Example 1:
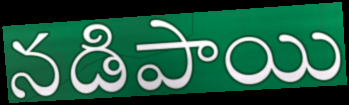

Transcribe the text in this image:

నడిపాయి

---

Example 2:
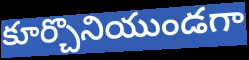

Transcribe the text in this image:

కూర్చొనియుండగా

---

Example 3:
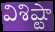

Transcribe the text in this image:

విశిష్టా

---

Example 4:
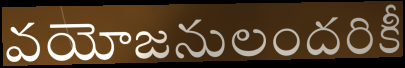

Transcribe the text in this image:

వయోజనులందరికీ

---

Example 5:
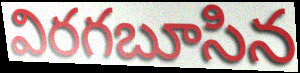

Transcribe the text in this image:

విరగబూసిన